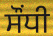
ਸੌਂਧੀ